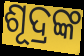
ଶୂଦ୍ରଙ୍କ